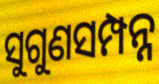
ସୁଗୁଣସମ୍ପନ୍ନ